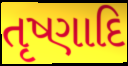
તૃષ્ણાદિ